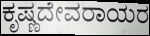
ಕೃಷ್ಣದೇವರಾಯರ